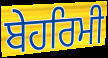
ਬੇਹਰਿਮੀ